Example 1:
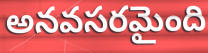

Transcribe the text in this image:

అనవసరమైంది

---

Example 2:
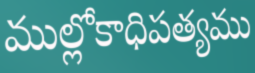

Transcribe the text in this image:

ముల్లోకాధిపత్యము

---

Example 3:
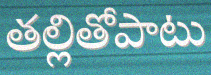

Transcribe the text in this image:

తల్లితోపాటు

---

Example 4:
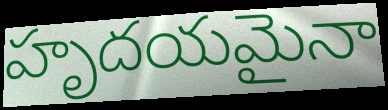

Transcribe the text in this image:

హృదయమైనా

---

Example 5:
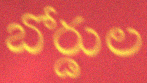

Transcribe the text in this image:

బోర్డుల